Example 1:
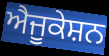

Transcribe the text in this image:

ਐਜੂਕੇਸ਼ਨ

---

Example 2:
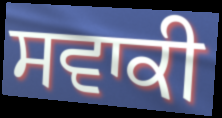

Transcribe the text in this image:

ਸਵਾਕੀ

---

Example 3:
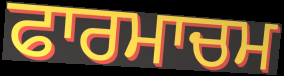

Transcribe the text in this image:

ਫਾਰਮਾਚਮ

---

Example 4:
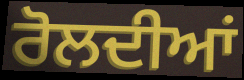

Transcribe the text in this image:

ਰੋਲਦੀਆਂ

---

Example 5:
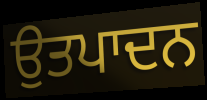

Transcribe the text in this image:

ਉਤਪਾਦਨ